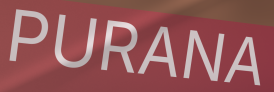
PURANA